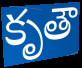
కృతౌ